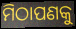
ମିଠାପଣକୁ